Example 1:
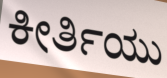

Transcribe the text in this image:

ಕೀರ್ತಿಯು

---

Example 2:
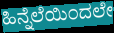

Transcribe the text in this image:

ಹಿನ್ನೆಲೆಯಿಂದಲೇ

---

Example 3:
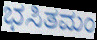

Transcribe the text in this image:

ಭಸಿತಮಂ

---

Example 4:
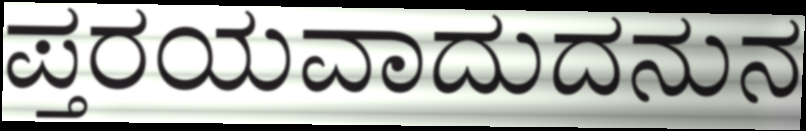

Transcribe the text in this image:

ಪ್ತರಯವಾದುದನುನ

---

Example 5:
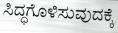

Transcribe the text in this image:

ಸಿದ್ಧಗೊಳಿಸುವುದಕ್ಕೆ